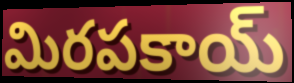
మిరపకాయ్